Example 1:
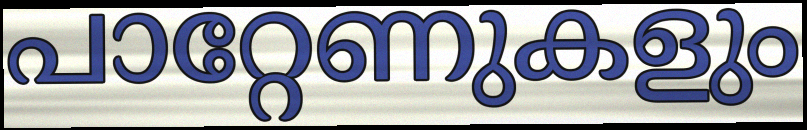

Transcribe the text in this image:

പാറ്റേണുകളും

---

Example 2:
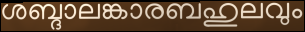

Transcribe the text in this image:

ശബ്ദാലങ്കാരബഹുലവും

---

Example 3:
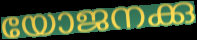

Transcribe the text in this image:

യോജനക്കു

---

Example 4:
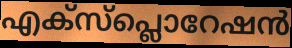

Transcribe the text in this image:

എക്സ്പ്ലൊറേഷൻ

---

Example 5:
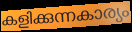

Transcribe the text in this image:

കളിക്കുന്നകാര്യം